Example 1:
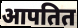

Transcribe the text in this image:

आपतित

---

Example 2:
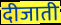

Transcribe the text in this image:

दीजाती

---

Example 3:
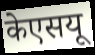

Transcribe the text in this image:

केएसयू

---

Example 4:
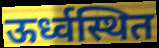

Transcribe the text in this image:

ऊर्ध्वस्थित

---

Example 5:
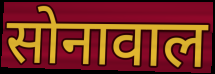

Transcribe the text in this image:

सोनावाल